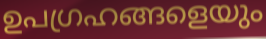
ഉപഗ്രഹങ്ങളെയും